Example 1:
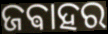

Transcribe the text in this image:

ଜଵାହର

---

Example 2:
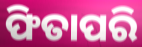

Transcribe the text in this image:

ଫିତାପରି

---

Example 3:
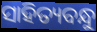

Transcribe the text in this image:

ସାହିତ୍ୟବନ୍ଧୁ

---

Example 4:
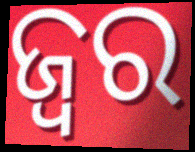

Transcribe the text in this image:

ଜ୍ଵର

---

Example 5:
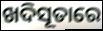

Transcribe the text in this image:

ଖଦିସୂତାରେ